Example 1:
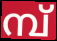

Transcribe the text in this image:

മ്പ്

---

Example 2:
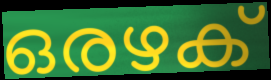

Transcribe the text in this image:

ഒരഴക്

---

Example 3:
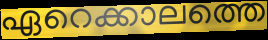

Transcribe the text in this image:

ഏറെക്കാലത്തെ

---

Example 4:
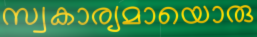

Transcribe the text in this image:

സ്വകാര്യമായൊരു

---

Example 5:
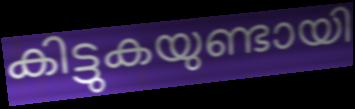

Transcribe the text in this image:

കിട്ടുകയുണ്ടായി